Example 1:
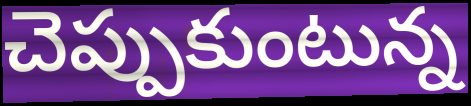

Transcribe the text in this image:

చెప్పుకుంటున్న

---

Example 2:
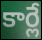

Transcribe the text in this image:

కార్లే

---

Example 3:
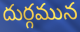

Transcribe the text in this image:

దుర్గమున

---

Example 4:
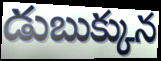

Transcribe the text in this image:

డుబుక్కున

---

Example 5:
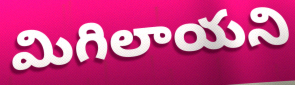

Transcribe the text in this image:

మిగిలాయని